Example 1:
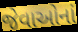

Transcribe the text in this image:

જેવાઓનાં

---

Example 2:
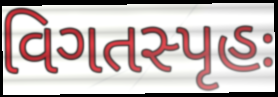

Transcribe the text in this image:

વિગતસ્પૃહઃ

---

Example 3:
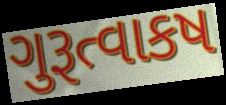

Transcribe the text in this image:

ગુરૂત્વાકષ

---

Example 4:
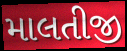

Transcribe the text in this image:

માલતીજી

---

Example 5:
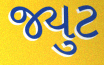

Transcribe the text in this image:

જ્યુટ